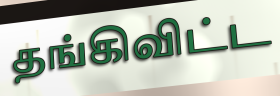
தங்கிவிட்ட